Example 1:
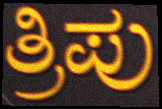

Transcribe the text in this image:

ತ್ರಿಪು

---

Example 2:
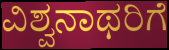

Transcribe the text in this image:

ವಿಶ್ವನಾಥರಿಗೆ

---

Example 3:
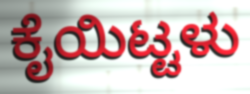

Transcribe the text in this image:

ಕೈಯಿಟ್ಟಳು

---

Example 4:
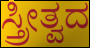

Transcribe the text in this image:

ಸ್ತ್ರೀತ್ವದ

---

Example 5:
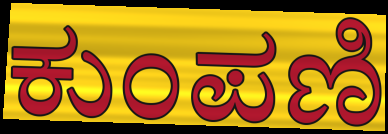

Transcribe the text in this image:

ಕುಂಪಣಿ